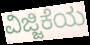
ವಿಜ್ಜಿಕೆಯ